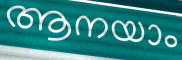
ആനയാം